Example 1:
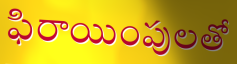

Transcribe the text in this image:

ఫిరాయింపులతో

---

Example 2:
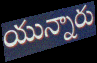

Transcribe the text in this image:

యున్నారు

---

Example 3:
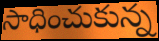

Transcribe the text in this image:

సాధించుకున్న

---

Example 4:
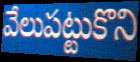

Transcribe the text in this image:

వేలుపట్టుకొని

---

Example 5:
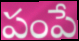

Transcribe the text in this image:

పంపే